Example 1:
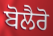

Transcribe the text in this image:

ਬੋਲੈਰੋ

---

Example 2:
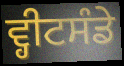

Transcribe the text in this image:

ਵ੍ਹੀਟਸੰਡੇ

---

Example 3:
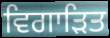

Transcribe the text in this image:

ਵਿਗਾੜਿਤ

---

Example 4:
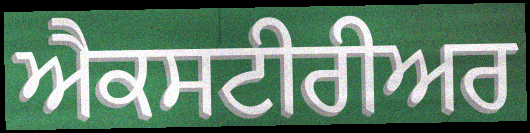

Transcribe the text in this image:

ਐਕਸਟੀਰੀਅਰ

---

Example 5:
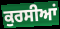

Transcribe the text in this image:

ਕੁਰਸੀਆਂ